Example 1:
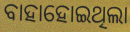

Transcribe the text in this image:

ବାହାହୋଇଥିଲା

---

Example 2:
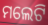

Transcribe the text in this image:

ମଲେଟି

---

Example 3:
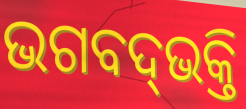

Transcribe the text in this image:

ଭଗବଦ୍‌ଭକ୍ତି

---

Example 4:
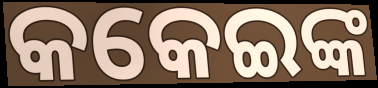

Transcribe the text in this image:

କକେଇଙ୍କ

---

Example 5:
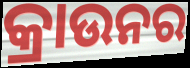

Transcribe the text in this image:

କ୍ରାଉନର